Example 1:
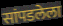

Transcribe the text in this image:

सांपडलेला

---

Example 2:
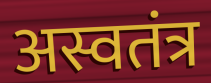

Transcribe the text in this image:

अस्वतंत्र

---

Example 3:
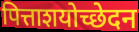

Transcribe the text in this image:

पित्ताशयोच्छेदन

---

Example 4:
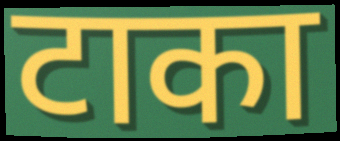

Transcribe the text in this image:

टाका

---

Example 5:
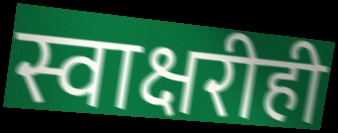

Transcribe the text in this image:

स्वाक्षरीही